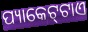
ପ୍ୟାକେଟ୍‌ଟାଏ